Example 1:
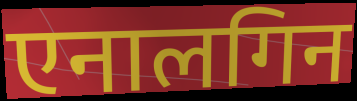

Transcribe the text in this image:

एनालगिन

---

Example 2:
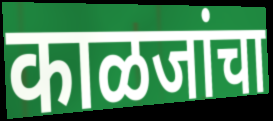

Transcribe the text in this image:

काळजांचा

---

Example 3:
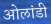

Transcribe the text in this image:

ओलांडी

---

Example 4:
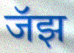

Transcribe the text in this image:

जॅझ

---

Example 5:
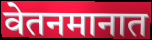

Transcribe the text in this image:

वेतनमानात